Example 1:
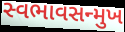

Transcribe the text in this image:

સ્વભાવસન્મુખ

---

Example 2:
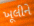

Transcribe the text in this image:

ખૂલીને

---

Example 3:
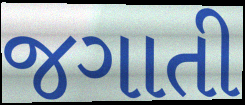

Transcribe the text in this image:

જગાતી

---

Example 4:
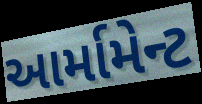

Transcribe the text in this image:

આર્મામેન્ટ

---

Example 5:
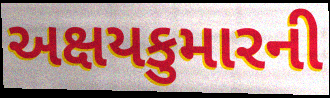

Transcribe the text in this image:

અક્ષયકુમારની